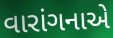
વારાંગનાએ